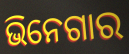
ଭିନେଗାର